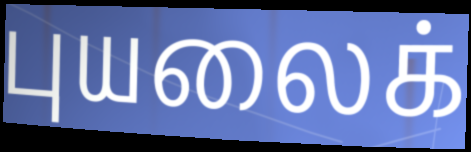
புயலைக்